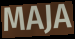
MAJA